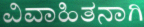
ವಿವಾಹಿತನಾಗಿ